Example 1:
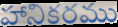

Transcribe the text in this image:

హానికరము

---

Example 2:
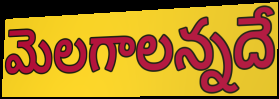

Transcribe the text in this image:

మెలగాలన్నదే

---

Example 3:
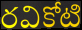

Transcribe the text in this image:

రవికోటి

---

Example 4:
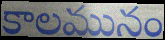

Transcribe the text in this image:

కాలమునం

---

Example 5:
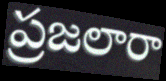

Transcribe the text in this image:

ప్రజలారా